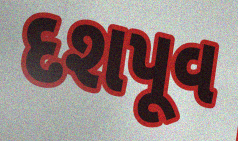
દશપૂવ